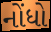
નોંધો